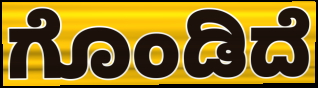
ಗೊಂಡಿದೆ